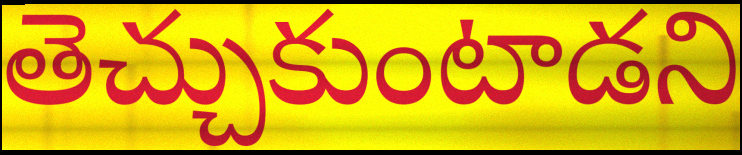
తెచ్చుకుంటాడని